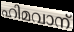
ഹിമവാന്